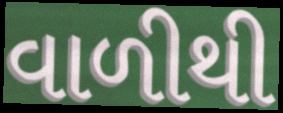
વાળીથી